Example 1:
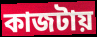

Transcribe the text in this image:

কাজটায়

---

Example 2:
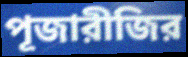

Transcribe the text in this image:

পূজারীজির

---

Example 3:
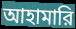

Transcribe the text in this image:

আহামারি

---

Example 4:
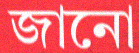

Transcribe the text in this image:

জানো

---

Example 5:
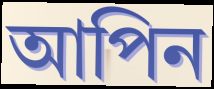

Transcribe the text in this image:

আপিন